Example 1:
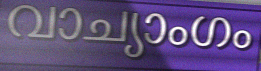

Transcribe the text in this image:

വാച്യാംഗം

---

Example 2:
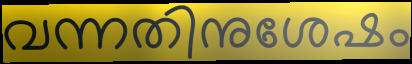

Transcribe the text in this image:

വന്നതിനുശേഷം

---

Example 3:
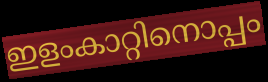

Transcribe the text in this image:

ഇളംകാറ്റിനൊപ്പം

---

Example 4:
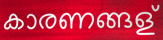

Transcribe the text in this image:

കാരണങ്ങള്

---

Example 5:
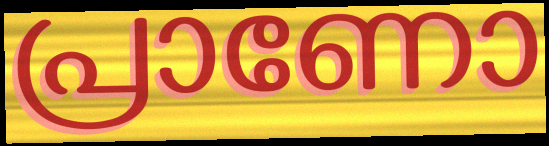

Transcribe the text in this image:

പ്രാണോ